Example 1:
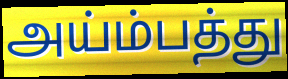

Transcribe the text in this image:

அய்ம்பத்து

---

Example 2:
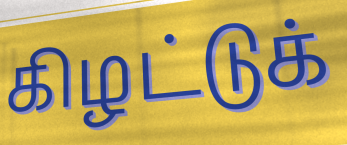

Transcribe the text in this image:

கிழட்டுக்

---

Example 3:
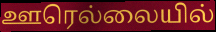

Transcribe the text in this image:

ஊரெல்லையில்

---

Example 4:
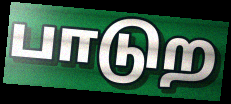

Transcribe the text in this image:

பாடுற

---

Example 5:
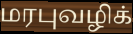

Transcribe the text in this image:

மரபுவழிக்